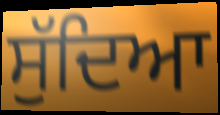
ਸੁੱਦਿਆ